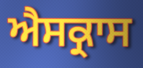
ਐਸਕ੍ਰਾਸ